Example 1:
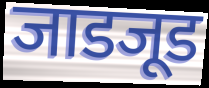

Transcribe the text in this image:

जाडजूड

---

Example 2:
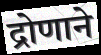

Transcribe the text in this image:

द्रोणाने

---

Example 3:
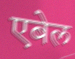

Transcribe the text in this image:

एबेल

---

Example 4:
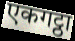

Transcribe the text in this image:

एकगट्ठा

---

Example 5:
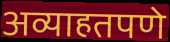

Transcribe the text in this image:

अव्याहतपणे